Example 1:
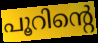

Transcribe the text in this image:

പൂറിന്റെ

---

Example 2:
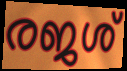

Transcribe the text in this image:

രജശ്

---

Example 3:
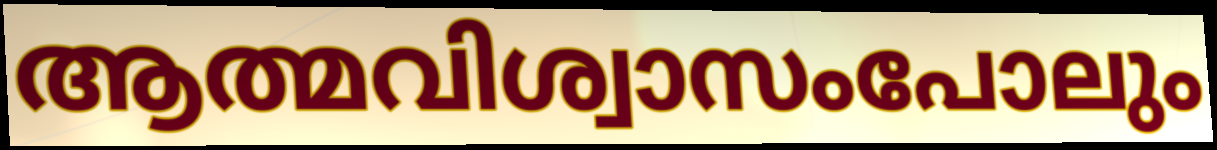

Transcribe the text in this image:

ആത്മവിശ്വാസംപോലും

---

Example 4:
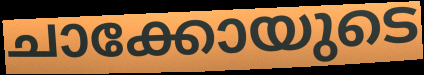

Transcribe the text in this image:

ചാക്കോയുടെ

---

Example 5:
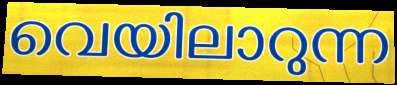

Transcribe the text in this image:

വെയിലാറുന്ന